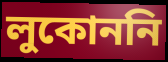
লুকোননি